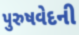
પુરુષવેદની